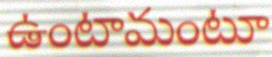
ఉంటామంటూ